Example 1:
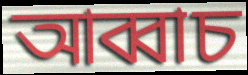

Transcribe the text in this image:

আব্বাচ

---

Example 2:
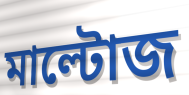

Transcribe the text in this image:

মাল্টোজ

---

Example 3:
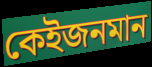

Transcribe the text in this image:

কেইজনমান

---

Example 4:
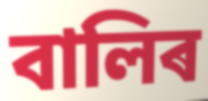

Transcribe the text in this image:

বালিৰ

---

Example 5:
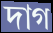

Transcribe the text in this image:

দাগ